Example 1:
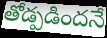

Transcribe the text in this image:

తోడ్పడిందనే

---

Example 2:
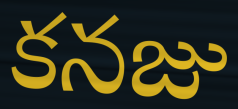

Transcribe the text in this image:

కనజు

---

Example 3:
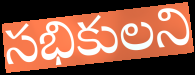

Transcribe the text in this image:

సభికులని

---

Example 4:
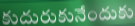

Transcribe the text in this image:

కుదురుకునేందుకు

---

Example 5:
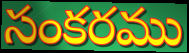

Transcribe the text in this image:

సంకరము